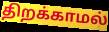
திறக்காமல்